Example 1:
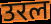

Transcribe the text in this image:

उरल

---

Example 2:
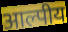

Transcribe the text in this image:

आल्पीय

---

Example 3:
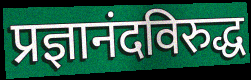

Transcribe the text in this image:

प्रज्ञानंदविरुद्ध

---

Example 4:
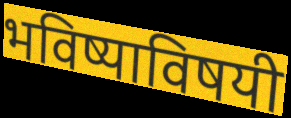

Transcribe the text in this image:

भविष्याविषयी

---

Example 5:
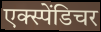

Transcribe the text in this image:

एक्स्पेंडिचर